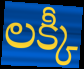
లక్కీ